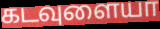
கடவுளையா